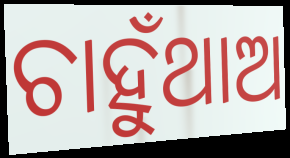
ଚାହୁଁଥାଅ